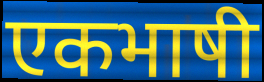
एकभाषी